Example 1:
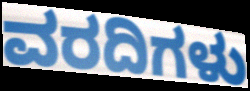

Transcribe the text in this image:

ವರದಿಗಳು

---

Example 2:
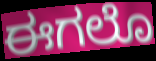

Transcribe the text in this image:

ಈಗಲೊ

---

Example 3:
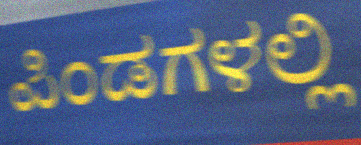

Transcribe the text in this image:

ಪಿಂಡಗಳಲ್ಲಿ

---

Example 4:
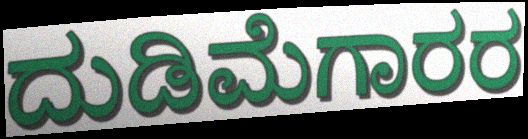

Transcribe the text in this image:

ದುಡಿಮೆಗಾರರ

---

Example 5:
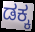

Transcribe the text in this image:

ಡಕ್ಕ